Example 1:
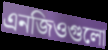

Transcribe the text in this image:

এনজিওগুলো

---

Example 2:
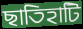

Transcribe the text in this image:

ছাতিহাটি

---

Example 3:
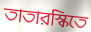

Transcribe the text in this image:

তাতারস্কিতে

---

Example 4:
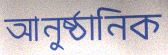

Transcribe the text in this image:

আনুষ্ঠানিক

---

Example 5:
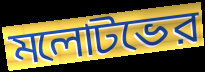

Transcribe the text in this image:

মলোটভের